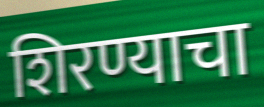
शिरण्याचा